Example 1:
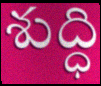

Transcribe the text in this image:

శుద్ధి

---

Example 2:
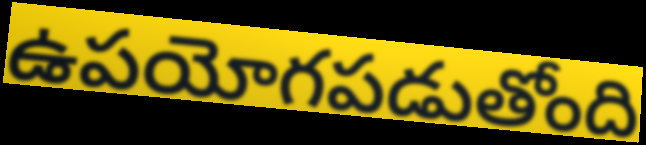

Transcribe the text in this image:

ఉపయోగపడుతోంది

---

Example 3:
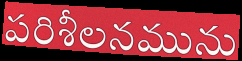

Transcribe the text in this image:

పరిశీలనమును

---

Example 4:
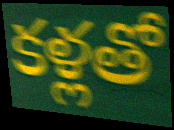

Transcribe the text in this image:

కళ్లతో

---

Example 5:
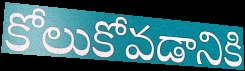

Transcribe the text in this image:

కోలుకోవడానికి